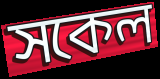
সকেল